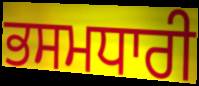
ਭਸਮਧਾਰੀ